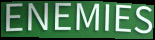
ENEMIES